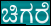
ಚಿಗರೆ